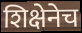
शिक्षेनेच